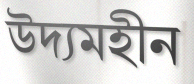
উদ্যমহীন